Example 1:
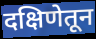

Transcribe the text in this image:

दक्षिणेतून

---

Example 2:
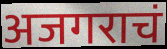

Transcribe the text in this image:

अजगराचं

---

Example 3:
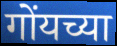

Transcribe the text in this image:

गोंयच्या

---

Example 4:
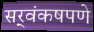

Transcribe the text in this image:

सर्वंकषपणे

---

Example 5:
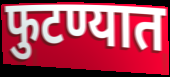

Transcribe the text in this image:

फुटण्यात